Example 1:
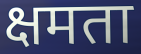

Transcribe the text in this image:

क्षमता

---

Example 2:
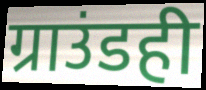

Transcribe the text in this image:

ग्राउंडही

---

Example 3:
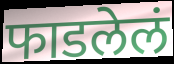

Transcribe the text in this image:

फाडलेलं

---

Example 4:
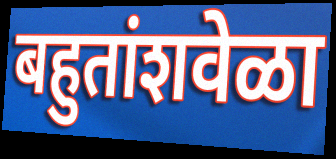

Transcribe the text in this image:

बहुतांशवेळा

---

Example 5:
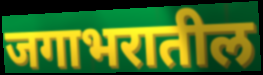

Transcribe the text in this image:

जगाभरातील